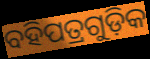
ବହିପତ୍ରଗୁଡ଼ିକ